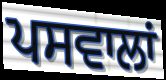
ਪਸਵਾਲਾਂ